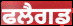
ਫਲੈਗਡ